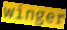
winger